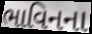
ભાવિનના